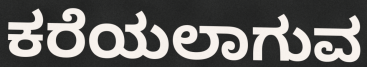
ಕರೆಯಲಾಗುವ